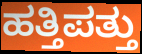
ಹತ್ತಿಪತ್ತು